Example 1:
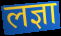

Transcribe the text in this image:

लज्ञा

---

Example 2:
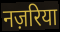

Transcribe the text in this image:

नज़रिया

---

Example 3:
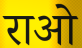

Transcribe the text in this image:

राओ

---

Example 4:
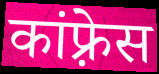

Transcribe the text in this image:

कांफ़्रेस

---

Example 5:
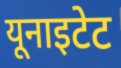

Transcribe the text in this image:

यूनाइटेट